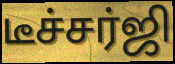
டீச்சர்ஜி